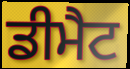
ਡੀਮੈਟ